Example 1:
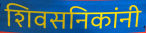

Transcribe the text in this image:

शिवसनिकांनी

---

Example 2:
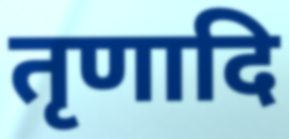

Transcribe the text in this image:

तृणादि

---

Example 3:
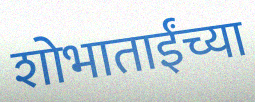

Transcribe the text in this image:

शोभाताईंच्या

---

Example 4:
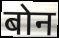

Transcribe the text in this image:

बोन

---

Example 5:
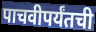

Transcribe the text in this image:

पाचवीपर्यंतची